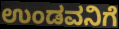
ಉಂಡವನಿಗೆ